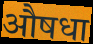
औषधा